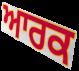
ਆਰਕ